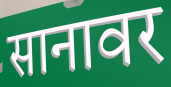
सानावर